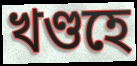
খণ্ডহে